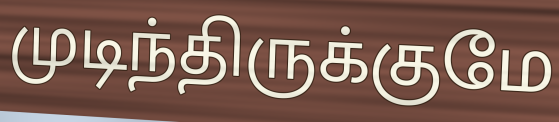
முடிந்திருக்குமே